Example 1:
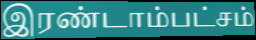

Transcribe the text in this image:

இரண்டாம்பட்சம்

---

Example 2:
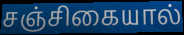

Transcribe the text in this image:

சஞ்சிகையால்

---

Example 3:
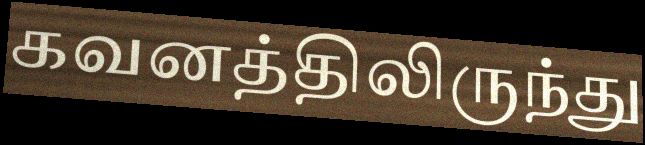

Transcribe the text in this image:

கவனத்திலிருந்து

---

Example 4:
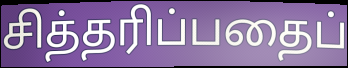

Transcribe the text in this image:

சித்தரிப்பதைப்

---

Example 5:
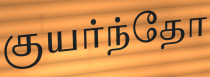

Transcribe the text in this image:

குயர்ந்தோ